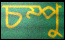
চম্পু